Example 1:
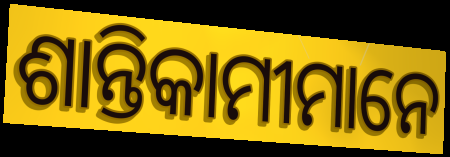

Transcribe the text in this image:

ଶାନ୍ତିକାମୀମାନେ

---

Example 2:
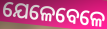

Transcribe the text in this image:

ଯେଳେବେଳେ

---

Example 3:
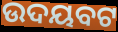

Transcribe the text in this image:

ଉଦୟବଟ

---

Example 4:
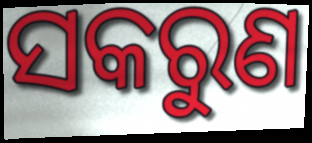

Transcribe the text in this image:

ସକରୁଣ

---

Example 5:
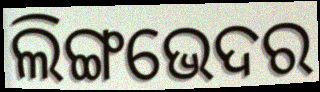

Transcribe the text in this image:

ଲିଙ୍ଗଭେଦର